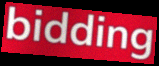
bidding